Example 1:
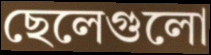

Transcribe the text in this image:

ছেলেগুলো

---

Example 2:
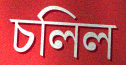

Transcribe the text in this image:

চলিল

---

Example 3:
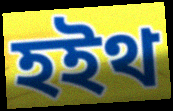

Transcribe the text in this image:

হইথ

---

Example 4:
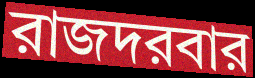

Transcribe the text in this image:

রাজদরবার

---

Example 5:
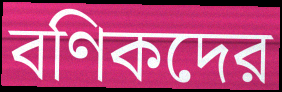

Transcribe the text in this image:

বণিকদের